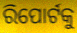
ରିପୋର୍ଟକୁ